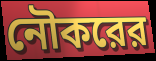
নৌকরের